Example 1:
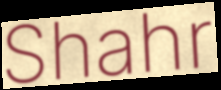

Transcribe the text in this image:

Shahr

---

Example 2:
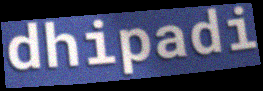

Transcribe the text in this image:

dhipadi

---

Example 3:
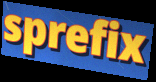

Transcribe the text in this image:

sprefix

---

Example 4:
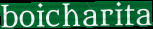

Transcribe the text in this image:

boicharita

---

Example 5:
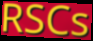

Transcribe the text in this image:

RSCs